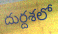
దుర్దశలో